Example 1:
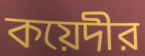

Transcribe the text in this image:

কয়েদীর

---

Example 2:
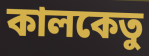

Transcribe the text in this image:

কালকেতু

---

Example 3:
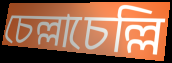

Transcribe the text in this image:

চেল্লাচেল্লি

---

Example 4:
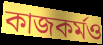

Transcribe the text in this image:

কাজকর্মও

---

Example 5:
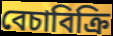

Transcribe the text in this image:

বেচাবিক্রি